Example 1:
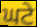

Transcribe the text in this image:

ਘਟੇ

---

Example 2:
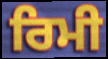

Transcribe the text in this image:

ਰਿਮੀ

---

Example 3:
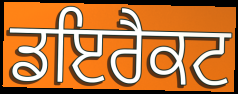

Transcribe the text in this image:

ਡਇਰੈਕਟ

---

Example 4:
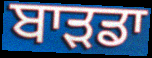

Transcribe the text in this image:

ਬਾੜਡਾ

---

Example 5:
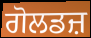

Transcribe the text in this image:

ਗੋਲਡਜ਼